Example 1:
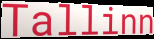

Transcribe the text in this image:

Tallinn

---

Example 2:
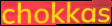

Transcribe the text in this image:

chokkas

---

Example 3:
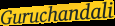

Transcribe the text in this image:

Guruchandali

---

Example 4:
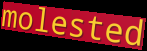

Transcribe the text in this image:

molested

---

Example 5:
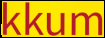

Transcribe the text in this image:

kkum